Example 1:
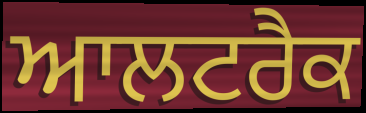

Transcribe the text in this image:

ਆਲਟਰੈਕ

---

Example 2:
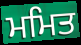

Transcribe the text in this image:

ਮਮਿਤ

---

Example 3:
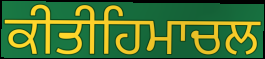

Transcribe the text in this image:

ਕੀਤੀਹਿਮਾਚਲ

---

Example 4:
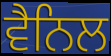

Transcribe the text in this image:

ਵੈਨਿਲ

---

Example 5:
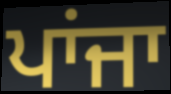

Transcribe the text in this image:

ਪਾਂਜਾ